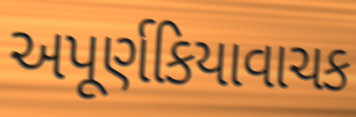
અપૂર્ણકિયાવાચક